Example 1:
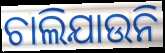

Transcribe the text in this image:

ଚାଲିଯାଉନି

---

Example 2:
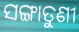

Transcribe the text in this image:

ସଙ୍ଗାତୁଣୀ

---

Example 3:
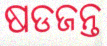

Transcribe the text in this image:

ଷଡଜନ୍ତ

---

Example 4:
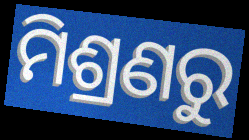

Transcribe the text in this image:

ମିଶ୍ରଣରୁ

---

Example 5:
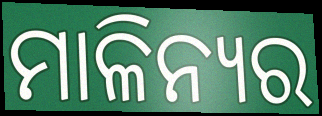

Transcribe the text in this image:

ମାଳିନ୍ୟର